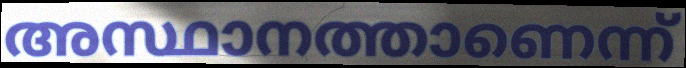
അസ്ഥാനത്താണെന്ന്